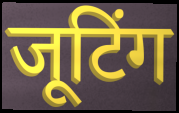
जूटिंग